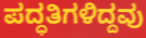
ಪದ್ಧತಿಗಳಿದ್ದವು